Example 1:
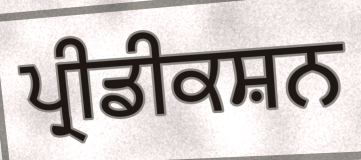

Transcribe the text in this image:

ਪ੍ਰੀਡੀਕਸ਼ਨ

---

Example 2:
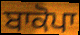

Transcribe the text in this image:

ਬਾਕੋਪਾ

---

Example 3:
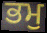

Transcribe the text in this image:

ਭਮੁ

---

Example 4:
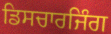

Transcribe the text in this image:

ਡਿਸਚਾਰਜਿੰਗ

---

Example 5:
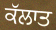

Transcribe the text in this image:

ਕੱਲਾਤ